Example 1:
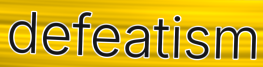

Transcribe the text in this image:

defeatism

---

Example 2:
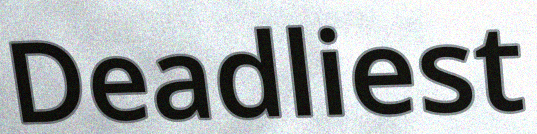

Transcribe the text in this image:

Deadliest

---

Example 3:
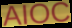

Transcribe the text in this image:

AIOC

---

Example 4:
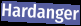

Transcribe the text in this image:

Hardanger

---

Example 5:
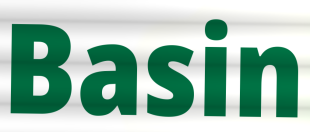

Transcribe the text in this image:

Basin